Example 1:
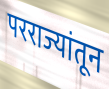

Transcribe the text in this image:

परराज्यांतून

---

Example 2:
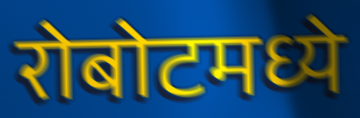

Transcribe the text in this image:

रोबोटमध्ये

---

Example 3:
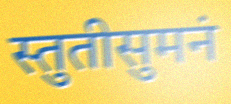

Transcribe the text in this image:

स्तुतीसुमनं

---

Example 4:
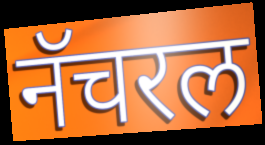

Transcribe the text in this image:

नॅचरल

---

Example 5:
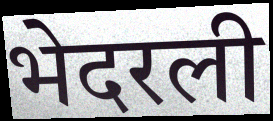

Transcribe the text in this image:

भेदरली